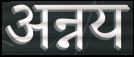
अन्नय